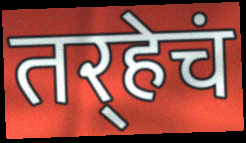
तर्‍हेचं